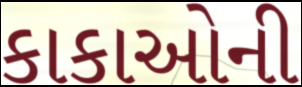
કાકાઓની